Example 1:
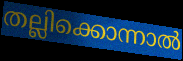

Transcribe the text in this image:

തല്ലിക്കൊന്നാൽ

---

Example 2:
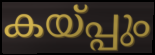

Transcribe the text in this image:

കയ്പ്പും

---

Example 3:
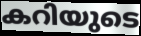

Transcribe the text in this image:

കറിയുടെ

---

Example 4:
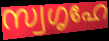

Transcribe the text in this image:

സ്വഗൃഹേ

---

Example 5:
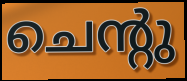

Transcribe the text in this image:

ചെന്റു